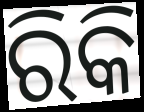
ରିକି